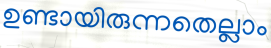
ഉണ്ടായിരുന്നതെല്ലാം